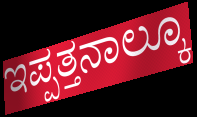
ಇಪ್ಪತ್ತನಾಲ್ಕೂ